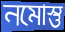
নমোস্তু